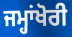
ਜਮ੍ਹਾਂਖੋਰੀ